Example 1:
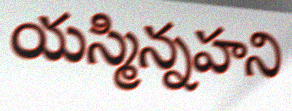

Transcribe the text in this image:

యస్మిన్నహని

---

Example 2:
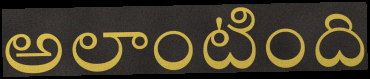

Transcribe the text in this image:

అలాంటింది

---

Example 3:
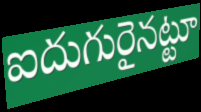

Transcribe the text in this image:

ఐదుగురైనట్టూ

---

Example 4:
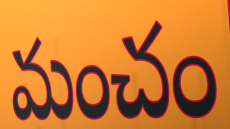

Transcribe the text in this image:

మంచం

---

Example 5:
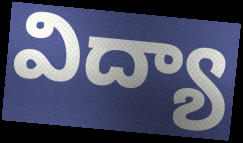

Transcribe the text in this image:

విద్యా